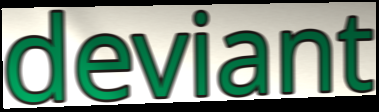
deviant